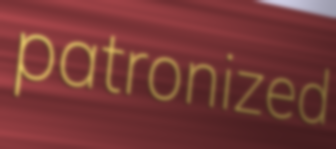
patronized